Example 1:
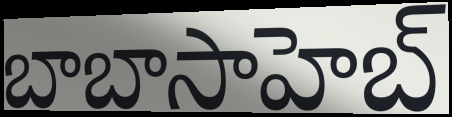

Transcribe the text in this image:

బాబాసాహెబ్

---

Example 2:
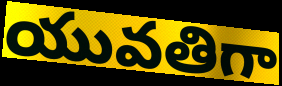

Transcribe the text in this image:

యువతిగా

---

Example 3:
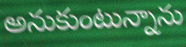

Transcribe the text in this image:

అనుకుంటున్నాను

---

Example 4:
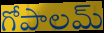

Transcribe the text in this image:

గోపాలమ్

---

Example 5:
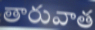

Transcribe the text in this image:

తారువాత